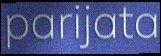
parijata